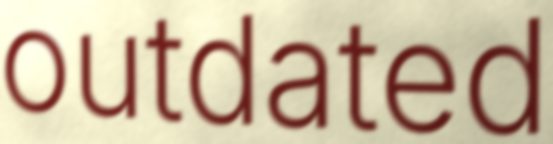
outdated